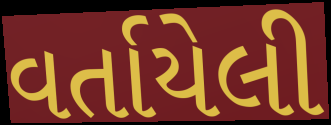
વર્તાયેલી